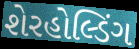
શેરહોલ્ડિંગ